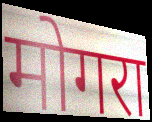
मोगरा